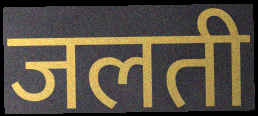
जलती